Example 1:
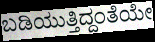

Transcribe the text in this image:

ಬಡಿಯುತ್ತಿದ್ದಂತೆಯೇ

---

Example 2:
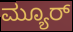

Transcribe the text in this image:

ಮ್ಯೂರ್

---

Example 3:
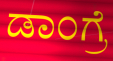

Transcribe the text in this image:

ಡಾಂಗ್ರೆ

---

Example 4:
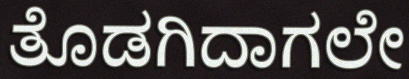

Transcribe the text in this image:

ತೊಡಗಿದಾಗಲೇ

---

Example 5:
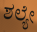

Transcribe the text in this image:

ಶಲ್ಯೇ